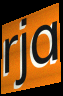
rja